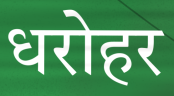
धरोहर